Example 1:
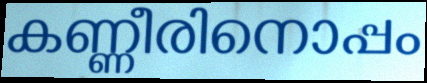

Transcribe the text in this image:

കണ്ണീരിനൊപ്പം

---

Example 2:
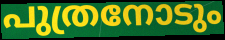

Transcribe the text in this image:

പുത്രനോടും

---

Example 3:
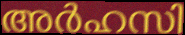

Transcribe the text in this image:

അർഹസി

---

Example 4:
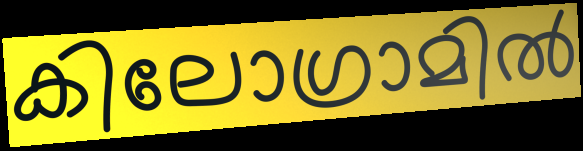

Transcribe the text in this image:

കിലോഗ്രാമിൽ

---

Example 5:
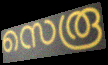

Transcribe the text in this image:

സെരൂ